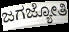
ಜಗಜ್ಯೋತಿ